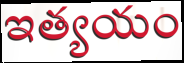
ఇత్యయం